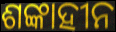
ଶଙ୍କାହୀନ